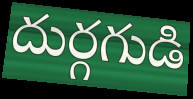
దుర్గగుడి